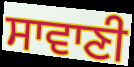
ਸਾਵਾਣੀ